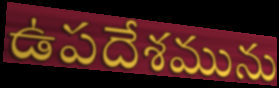
ఉపదేశమును